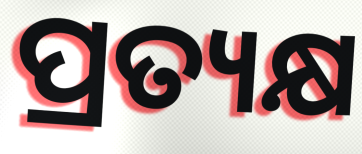
ପ୍ରତ୍ୟକ୍ଷ